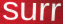
surr